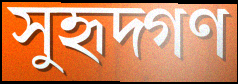
সুহৃদ্গণ